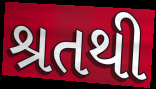
શ્રતથી